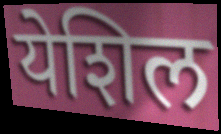
येशिल